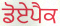
ਡੋਏਪੈਕ